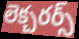
లెక్చరర్స్